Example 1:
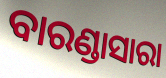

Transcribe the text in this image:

ବାରଣ୍ଡାସାରା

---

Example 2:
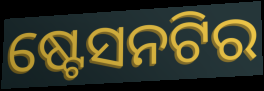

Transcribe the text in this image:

ଷ୍ଟେସନଟିର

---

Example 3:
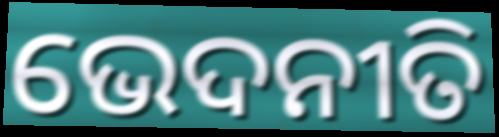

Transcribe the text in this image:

ଭେଦନୀତି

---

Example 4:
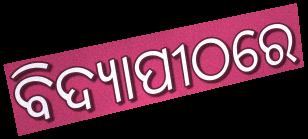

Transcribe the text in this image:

ବିଦ୍ୟାପୀଠରେ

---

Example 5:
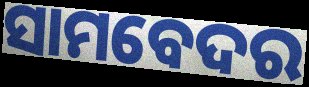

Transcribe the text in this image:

ସାମବେଦର